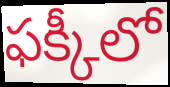
ఫక్కీలో